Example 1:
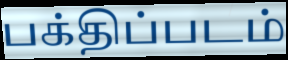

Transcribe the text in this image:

பக்திப்படம்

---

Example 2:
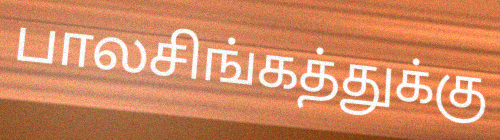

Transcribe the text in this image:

பாலசிங்கத்துக்கு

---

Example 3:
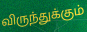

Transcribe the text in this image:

விருந்துக்கும்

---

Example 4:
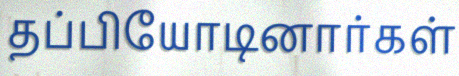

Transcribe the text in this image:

தப்பியோடினார்கள்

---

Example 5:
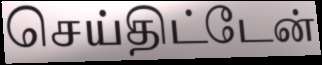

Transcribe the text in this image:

செய்திட்டேன்